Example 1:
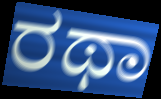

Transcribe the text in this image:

ರಥಾ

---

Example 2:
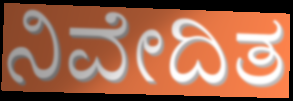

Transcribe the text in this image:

ನಿವೇದಿತ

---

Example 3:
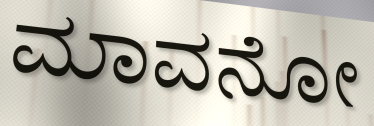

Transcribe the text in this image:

ಮಾವನೋ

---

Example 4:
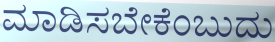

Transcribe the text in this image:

ಮಾಡಿಸಬೇಕೆಂಬುದು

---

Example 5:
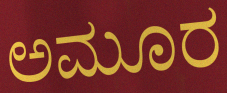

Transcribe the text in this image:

ಅಮೂರ